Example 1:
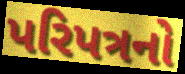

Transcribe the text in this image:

પરિપત્રનો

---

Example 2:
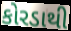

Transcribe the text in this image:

કોરડાથી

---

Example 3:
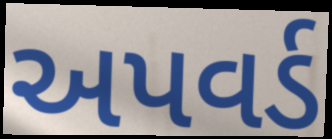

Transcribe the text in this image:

અપવર્ડ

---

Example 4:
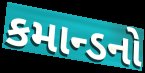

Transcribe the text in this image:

કમાન્ડનો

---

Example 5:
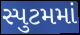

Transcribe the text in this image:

સ્પુટમમાં